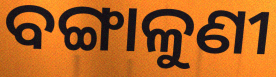
ବଙ୍ଗାଳୁଣୀ